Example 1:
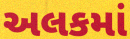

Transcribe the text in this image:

અલકમાં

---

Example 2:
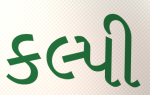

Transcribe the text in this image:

કલ્પી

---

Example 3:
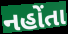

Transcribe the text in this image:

નહોંતા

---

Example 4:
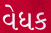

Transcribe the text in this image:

વેધક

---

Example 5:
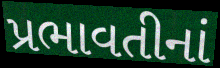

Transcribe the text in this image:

પ્રભાવતીનાં